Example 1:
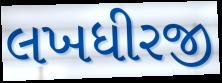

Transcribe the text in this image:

લખધીરજી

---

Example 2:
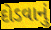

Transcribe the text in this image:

દોડવાનું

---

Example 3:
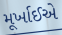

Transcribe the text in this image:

મૂર્ખાઈએ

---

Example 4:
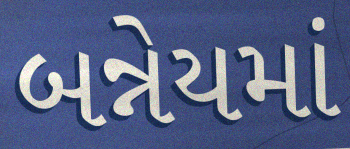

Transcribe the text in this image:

બન્નેયમાં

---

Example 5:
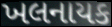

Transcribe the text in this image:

ખલનાયક